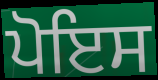
ਪੋਇਸ